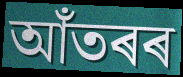
আঁতৰৰ